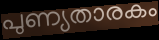
പുണ്യതാരകം